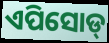
ଏପିସୋଡ୍